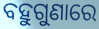
ବହୁଗୁଣାରେ